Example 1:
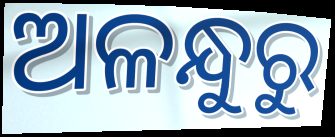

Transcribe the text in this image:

ଅଳନ୍ଧୁରୁ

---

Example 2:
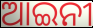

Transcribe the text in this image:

ଆଇନୀ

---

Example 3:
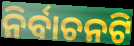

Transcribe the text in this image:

ନିର୍ବାଚନଟି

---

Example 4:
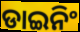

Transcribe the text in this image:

ଡାଇନିଂ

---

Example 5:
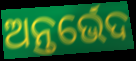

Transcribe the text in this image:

ଅନ୍ତର୍ଭେଦ